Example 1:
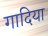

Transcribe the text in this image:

गादिया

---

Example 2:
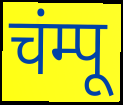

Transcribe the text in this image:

चंम्पू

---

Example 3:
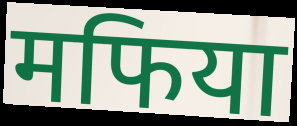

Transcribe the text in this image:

मफिया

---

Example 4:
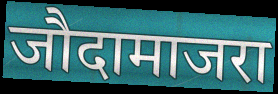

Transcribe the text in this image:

जौदामाजरा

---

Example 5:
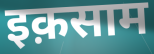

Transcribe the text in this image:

इक़साम